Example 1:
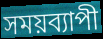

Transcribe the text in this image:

সময়ব্যাপী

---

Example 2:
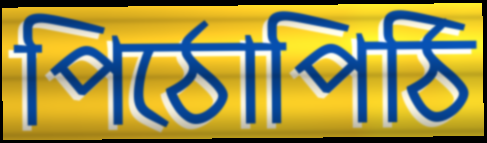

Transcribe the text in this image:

পিঠোপিঠি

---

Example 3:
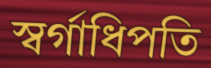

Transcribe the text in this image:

স্বর্গাধিপতি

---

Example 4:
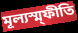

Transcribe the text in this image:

মূল্যস্ম্ফীতি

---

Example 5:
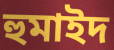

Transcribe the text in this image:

হুমাইদ